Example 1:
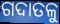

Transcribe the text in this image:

ଗଦାତଳୁ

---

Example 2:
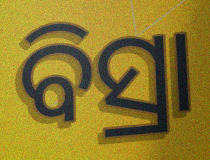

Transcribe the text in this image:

ବିସ୍ରା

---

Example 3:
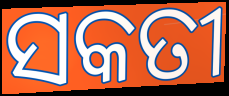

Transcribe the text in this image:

ସକତୀ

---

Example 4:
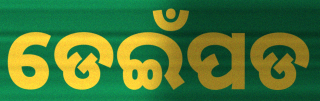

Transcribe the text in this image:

ଡେଇଁପଡ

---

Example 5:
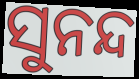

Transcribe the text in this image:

ସୁନନ୍ଦ